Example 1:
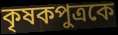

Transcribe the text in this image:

কৃষকপুত্রকে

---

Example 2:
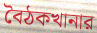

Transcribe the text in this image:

বৈঠকখানার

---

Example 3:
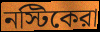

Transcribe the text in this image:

নস্টিকেরা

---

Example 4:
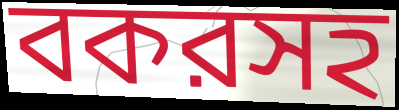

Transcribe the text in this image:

বকরসহ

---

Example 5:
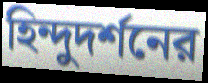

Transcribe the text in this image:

হিন্দুদর্শনের